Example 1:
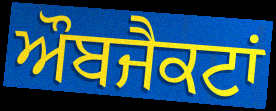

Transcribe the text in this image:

ਔਬਜੈਕਟਾਂ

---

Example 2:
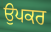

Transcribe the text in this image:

ਉਪਕਰ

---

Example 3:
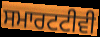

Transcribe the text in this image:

ਸਮਾਰਟਟੀਵੀ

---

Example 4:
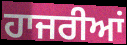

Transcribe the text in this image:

ਹਾਜਰੀਆਂ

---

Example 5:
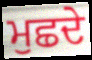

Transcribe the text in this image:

ਮੁਛਦੇ